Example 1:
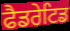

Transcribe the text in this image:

ਫੈਡਰੇਟਿਡ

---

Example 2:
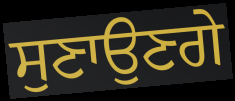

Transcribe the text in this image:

ਸੁਣਾਉਣਗੇ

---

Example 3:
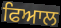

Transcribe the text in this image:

ਫਿਆਲ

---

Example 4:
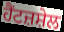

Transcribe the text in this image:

ਹੈਂਟਜ਼ਸ਼ੇਲ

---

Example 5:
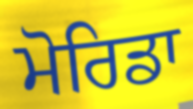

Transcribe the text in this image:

ਮੋਰਿਡਾ